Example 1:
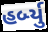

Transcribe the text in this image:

હર્બ્યુ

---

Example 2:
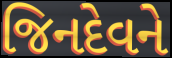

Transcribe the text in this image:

જિનદેવને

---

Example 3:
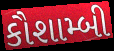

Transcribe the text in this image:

કૌશામ્બી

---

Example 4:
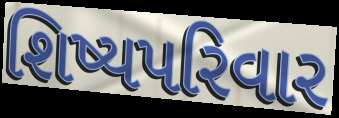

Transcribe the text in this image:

શિષ્યપરિવાર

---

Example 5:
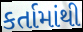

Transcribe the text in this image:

કર્તામાંથી